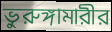
ভুরুঙ্গামারীর